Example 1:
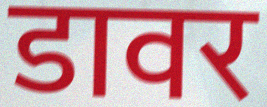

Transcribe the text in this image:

डावर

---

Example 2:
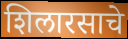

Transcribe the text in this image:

शिलारसाचे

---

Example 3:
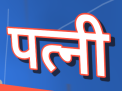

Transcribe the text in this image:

पत्नी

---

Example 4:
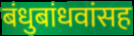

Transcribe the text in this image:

बंधुबांधवांसह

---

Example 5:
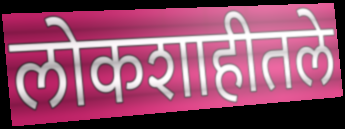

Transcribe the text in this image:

लोकशाहीतले